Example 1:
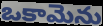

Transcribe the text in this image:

ఒకామెను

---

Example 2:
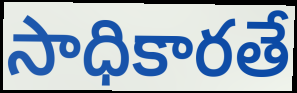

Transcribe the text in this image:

సాధికారతే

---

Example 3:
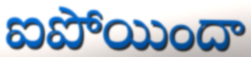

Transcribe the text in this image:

ఐపోయిందా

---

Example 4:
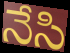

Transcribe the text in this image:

నేసి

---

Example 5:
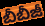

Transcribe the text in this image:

బీబీజీ